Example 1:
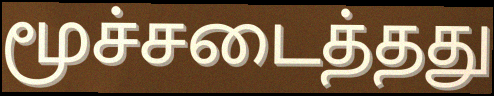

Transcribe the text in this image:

மூச்சடைத்தது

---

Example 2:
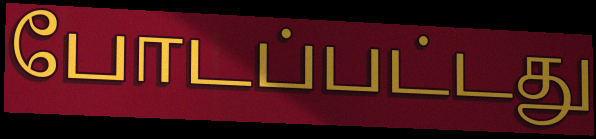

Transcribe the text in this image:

போடப்பட்டது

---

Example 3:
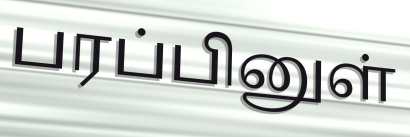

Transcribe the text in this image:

பரப்பினுள்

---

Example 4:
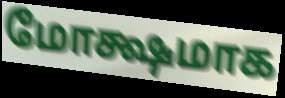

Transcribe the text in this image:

மோக்ஷமாக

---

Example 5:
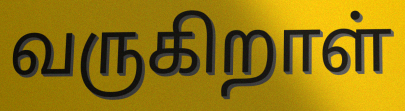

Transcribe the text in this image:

வருகிறாள்